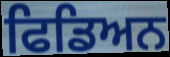
ਫਿਡਿਅਨ